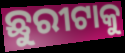
ଛୁରୀଟାକୁ